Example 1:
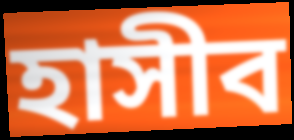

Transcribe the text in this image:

হাসীব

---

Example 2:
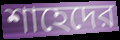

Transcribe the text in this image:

শাহেদের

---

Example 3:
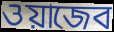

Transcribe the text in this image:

ওয়াজেব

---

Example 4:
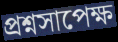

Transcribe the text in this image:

প্রশ্নসাপেক্ষ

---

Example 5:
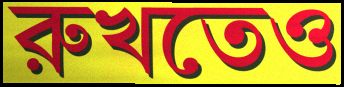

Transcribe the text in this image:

রুখতেও